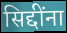
सिद्दींना